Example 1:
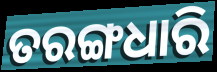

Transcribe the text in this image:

ତରଙ୍ଗଧାରି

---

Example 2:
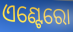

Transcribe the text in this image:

ଏଣ୍ଟେରୋ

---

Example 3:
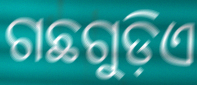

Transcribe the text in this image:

ଗଛଗୁଡ଼ିଏ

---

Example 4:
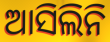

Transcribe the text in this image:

ଆସିଲିନି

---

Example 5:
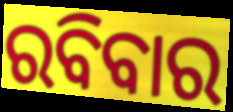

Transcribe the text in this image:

ରବିବାର